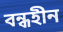
বন্ধহীন